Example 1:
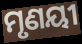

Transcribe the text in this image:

ମୃଣୟୀ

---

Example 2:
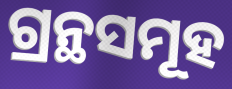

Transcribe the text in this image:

ଗ୍ରନ୍ଥସମୂହ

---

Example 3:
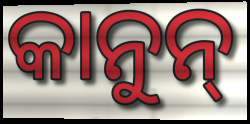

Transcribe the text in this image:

କାନୁନ୍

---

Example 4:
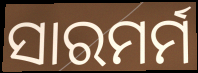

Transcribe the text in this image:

ସାରମର୍ମ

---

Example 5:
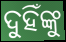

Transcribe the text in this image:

ଦୁହିଁଙ୍କୁ